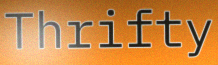
Thrifty